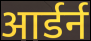
आर्डर्न